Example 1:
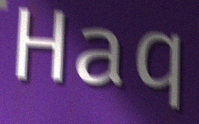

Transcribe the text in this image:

Haq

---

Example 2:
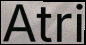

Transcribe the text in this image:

Atri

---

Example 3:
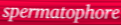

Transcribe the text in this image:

spermatophore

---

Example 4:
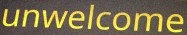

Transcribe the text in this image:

unwelcome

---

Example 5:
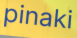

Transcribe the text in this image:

pinaki